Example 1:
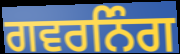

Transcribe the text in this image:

ਗਵਰਨਿੰਗ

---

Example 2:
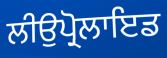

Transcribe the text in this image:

ਲੀਉਪ੍ਰੋਲਾਇਡ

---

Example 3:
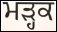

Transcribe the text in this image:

ਮੜ੍ਹਕ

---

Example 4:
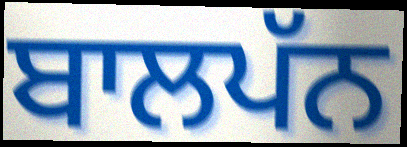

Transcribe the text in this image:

ਬਾਲਪੱਨ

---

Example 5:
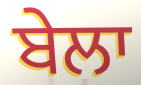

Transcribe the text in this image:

ਬੇਲਾ